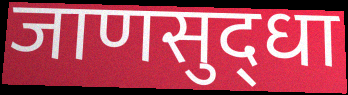
जाणसुद्धा